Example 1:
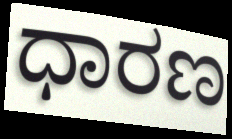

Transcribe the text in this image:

ಧಾರಣ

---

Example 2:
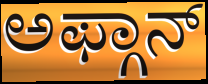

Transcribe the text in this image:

ಅಫ್ಗಾನ್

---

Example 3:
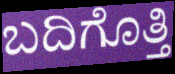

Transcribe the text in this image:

ಬದಿಗೊತ್ತಿ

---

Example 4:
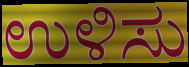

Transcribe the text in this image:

ಉಳಿಸು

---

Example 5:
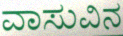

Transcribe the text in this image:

ವಾಸುವಿನ